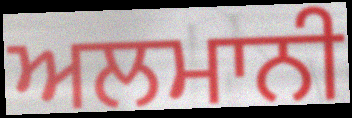
ਅਲਮਾਨੀ